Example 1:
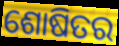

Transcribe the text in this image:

ଶୋଷିତର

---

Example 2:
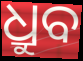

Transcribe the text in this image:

ଧ୍ରୁବ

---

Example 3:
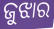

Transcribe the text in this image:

ଜୁଝାର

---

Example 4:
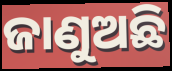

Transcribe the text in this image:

ଜାଣୁଅଛି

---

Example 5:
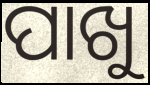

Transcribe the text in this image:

ପାଖୁ